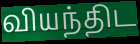
வியந்திட